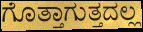
ಗೊತ್ತಾಗುತ್ತದಲ್ಲ